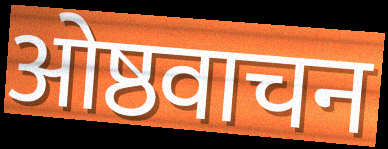
ओष्ठवाचन